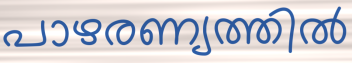
പാഴരണ്യത്തിൽ